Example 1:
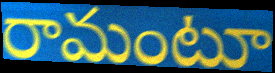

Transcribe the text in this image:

రామంటూ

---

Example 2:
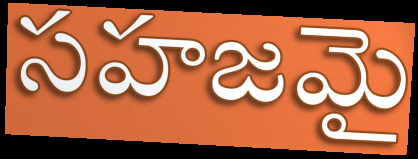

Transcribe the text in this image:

సహజమై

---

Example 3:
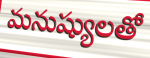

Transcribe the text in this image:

మనుష్యులతో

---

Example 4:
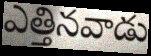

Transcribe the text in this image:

ఎత్తినవాడు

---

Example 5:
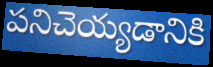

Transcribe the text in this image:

పనిచెయ్యడానికి